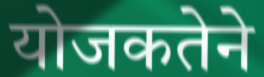
योजकतेने